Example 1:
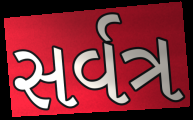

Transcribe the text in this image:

સર્વત્ર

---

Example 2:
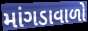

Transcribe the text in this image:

માંગડાવાળો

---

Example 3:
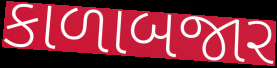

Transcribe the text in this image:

કાળાબજાર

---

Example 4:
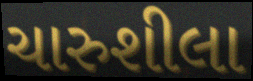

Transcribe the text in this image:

ચારુશીલા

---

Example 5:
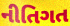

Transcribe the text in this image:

નીતિગત